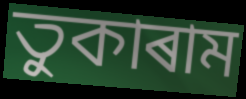
তুকাৰাম